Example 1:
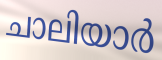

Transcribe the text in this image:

ചാലിയാർ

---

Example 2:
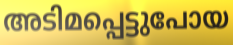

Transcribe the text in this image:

അടിമപ്പെട്ടുപോയ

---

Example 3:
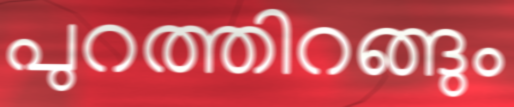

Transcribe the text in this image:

പുറത്തിറങ്ങും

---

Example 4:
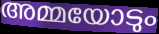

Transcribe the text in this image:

അമ്മയോടും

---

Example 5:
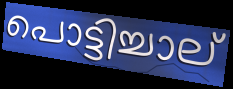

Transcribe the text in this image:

പൊട്ടിച്ചാല്